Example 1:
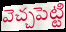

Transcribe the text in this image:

వెచ్చపెట్టి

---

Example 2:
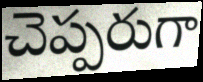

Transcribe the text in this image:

చెప్పరుగా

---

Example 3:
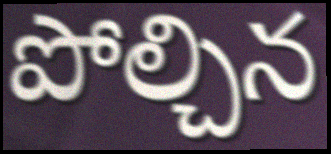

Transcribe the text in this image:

పోల్చిన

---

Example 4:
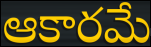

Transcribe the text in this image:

ఆకారమే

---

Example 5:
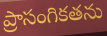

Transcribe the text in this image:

ప్రాసంగికతను